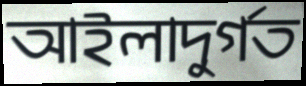
আইলাদুর্গত